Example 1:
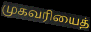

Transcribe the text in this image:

முகவரியைத்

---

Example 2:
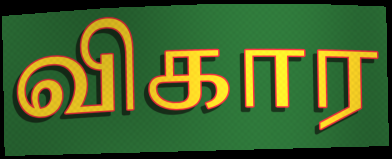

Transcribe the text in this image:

விகார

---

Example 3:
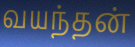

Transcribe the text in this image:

வயந்தன்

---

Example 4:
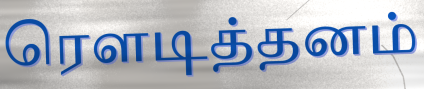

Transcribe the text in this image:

ரௌடித்தனம்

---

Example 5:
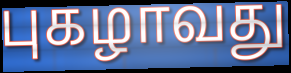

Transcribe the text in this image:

புகழாவது